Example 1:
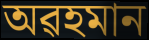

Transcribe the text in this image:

অৱহমান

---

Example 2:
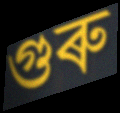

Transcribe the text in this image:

গুৰু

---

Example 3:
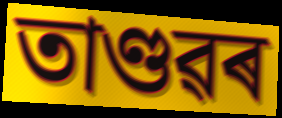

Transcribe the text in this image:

তাণ্ডৱৰ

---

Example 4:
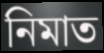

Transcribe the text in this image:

নিমাত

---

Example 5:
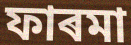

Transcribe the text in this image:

ফাৰমা